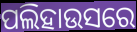
ପଲିହାଉସରେ